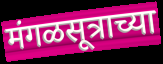
मंगळसूत्राच्या